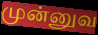
முன்னுவ